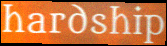
hardship